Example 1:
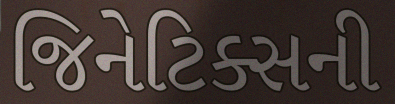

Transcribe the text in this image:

જિનેટિક્સની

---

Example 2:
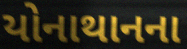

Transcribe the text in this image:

યોનાથાનના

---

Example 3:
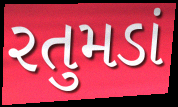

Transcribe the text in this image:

રતુમડાં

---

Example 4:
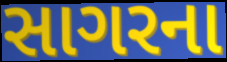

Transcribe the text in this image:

સાગરના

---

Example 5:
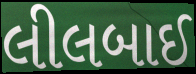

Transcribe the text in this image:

લીલબાઈ